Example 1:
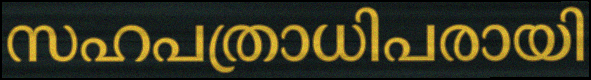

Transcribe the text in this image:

സഹപത്രാധിപരായി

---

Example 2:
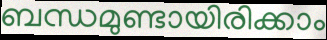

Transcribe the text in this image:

ബന്ധമുണ്ടായിരിക്കാം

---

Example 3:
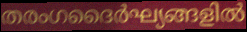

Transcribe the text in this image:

തരംഗദൈർഘ്യങ്ങളിൽ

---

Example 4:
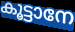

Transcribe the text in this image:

കൂട്ടാനേ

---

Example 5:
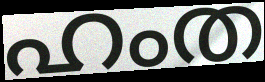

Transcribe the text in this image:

ഹംത